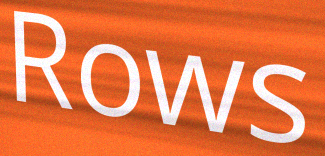
Rows